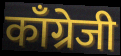
काँग्रेजी